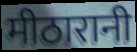
मीठारानी